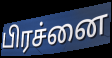
பிரச்னை